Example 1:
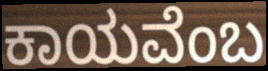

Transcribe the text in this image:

ಕಾಯವೆಂಬ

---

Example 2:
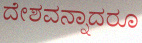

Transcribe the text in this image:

ದೇಶವನ್ನಾದರೂ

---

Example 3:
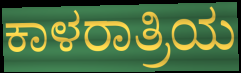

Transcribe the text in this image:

ಕಾಳರಾತ್ರಿಯ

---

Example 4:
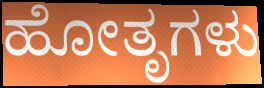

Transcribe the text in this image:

ಹೋತೃಗಳು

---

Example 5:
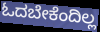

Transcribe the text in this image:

ಓದಬೇಕೆಂದಿಲ್ಲ